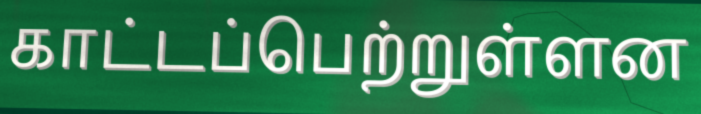
காட்டப்பெற்றுள்ளன